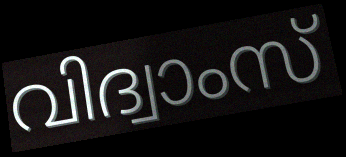
വിദ്വാംസ്